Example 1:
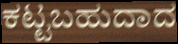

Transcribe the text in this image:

ಕಟ್ಟಬಹುದಾದ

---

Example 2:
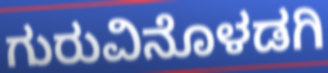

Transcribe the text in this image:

ಗುರುವಿನೊಳಡಗಿ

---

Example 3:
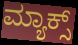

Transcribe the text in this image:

ಮ್ಯಾಕ್ಸ್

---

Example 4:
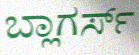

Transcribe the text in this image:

ಬ್ಲಾಗರ್ಸ್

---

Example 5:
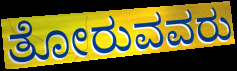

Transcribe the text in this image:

ತೋರುವವರು